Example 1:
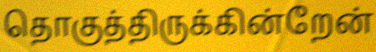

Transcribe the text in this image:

தொகுத்திருக்கின்றேன்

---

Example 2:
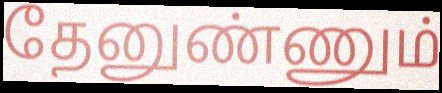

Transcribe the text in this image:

தேனுண்ணும்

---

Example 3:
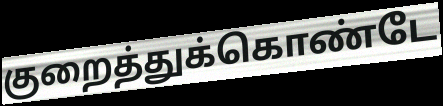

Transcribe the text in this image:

குறைத்துக்கொண்டே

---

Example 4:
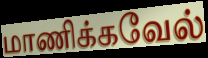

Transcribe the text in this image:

மாணிக்கவேல்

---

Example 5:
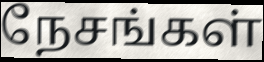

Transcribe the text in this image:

நேசங்கள்